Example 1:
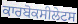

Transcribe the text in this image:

ਕਾਰਬੋਕਸੀਲੇਟਸ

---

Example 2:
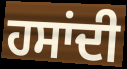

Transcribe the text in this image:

ਹਸਾਂਦੀ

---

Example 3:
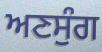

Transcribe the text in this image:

ਅਣਸੁੰਗ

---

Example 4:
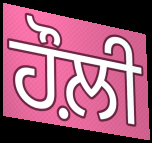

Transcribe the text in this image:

ਹੌਲ਼ੀ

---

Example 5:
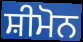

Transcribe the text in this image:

ਸ਼ੀਮੋਨ